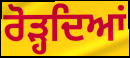
ਰੋੜ੍ਹਦਿਆਂ